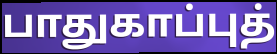
பாதுகாப்புத்